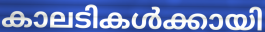
കാലടികൾക്കായി